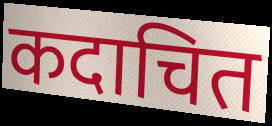
कदाचित